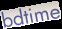
bdtime